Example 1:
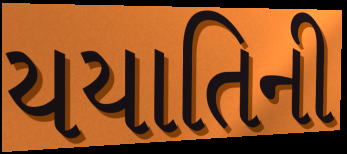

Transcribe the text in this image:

યયાતિની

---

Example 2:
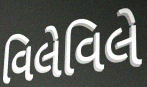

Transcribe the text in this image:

વિલેવિલે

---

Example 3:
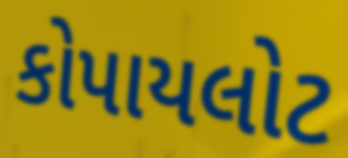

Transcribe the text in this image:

કોપાયલોટ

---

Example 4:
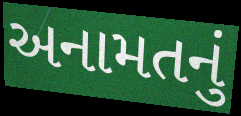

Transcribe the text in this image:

અનામતનું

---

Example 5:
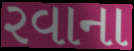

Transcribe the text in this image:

રવાના